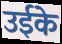
उईके